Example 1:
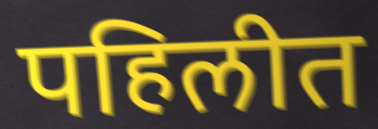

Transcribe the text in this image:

पहिलीत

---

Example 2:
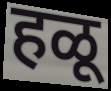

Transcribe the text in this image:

हळू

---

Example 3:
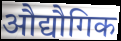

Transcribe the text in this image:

औद्यौगिक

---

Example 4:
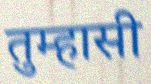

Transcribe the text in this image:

तुम्हासी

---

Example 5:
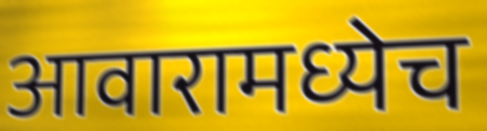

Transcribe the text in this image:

आवारामध्येच